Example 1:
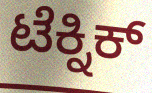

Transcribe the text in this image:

ಟೆಕ್ನಿಕ್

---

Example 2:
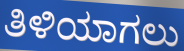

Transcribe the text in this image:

ತಿಳಿಯಾಗಲು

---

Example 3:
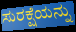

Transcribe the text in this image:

ಸುರಕ್ಷೆಯನ್ನು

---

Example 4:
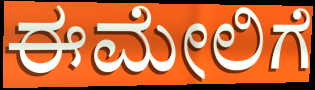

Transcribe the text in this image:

ಈಮೇಲಿಗೆ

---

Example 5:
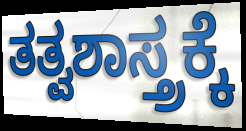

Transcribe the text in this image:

ತತ್ವಶಾಸ್ತ್ರಕ್ಕೆ